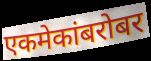
एकमेकांबरोबर